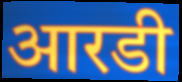
आरडी